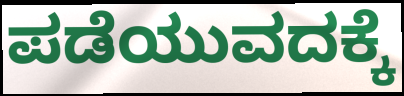
ಪಡೆಯುವದಕ್ಕೆ